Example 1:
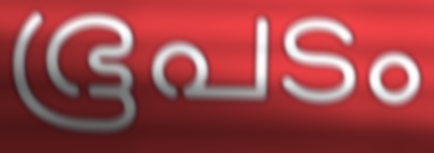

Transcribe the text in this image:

ഭൂപടം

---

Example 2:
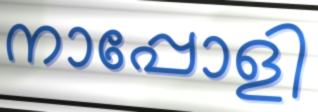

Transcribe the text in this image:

നാപ്പോളി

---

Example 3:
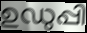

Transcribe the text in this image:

ഉഡുപ്പി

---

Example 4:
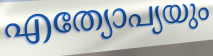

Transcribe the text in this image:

എത്യോപ്യയും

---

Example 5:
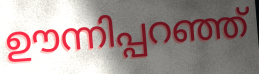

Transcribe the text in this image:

ഊന്നിപ്പറഞ്ഞ്